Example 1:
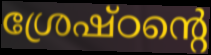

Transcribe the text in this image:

ശ്രേഷ്ഠന്റെ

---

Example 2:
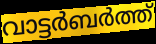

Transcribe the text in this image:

വാട്ടർബർത്ത്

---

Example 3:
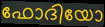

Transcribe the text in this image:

ഫോദിയോ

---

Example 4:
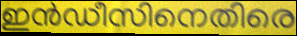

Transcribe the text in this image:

ഇൻഡീസിനെതിരെ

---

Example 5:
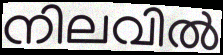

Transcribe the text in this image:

നിലവിൽ